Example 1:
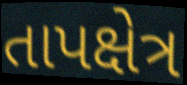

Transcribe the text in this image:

તાપક્ષેત્ર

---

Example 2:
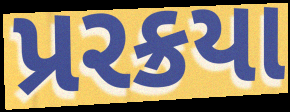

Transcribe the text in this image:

પ્રરક્રયા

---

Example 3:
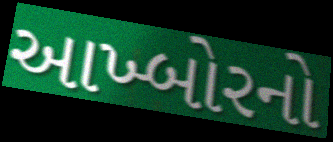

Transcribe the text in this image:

આખ્બોરનો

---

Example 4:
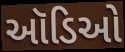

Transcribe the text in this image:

ઑડિઓ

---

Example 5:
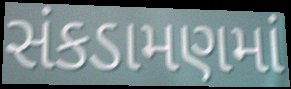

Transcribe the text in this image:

સંકડામણમાં